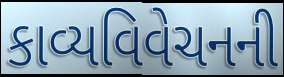
કાવ્યવિવેચનની